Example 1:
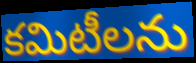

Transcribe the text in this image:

కమిటీలను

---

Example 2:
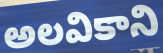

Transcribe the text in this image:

అలవికాని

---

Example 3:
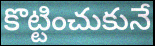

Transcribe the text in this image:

కొట్టించుకునే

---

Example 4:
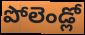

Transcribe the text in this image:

పోలెండ్లో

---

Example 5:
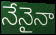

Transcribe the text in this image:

నేనైనా